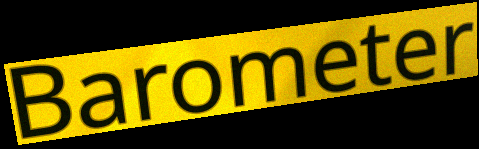
Barometer